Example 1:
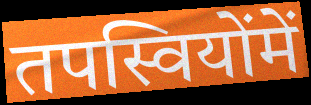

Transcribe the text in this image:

तपस्वियोंमें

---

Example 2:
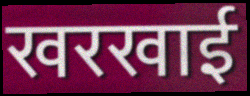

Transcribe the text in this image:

खरखाई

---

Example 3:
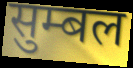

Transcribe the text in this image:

सुम्बल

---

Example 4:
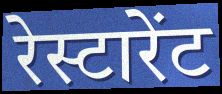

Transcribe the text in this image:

रेस्टारेंट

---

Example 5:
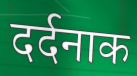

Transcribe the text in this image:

दर्दनाक